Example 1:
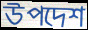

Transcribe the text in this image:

উপদেশ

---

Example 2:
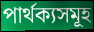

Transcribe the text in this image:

পাৰ্থক্যসমূহ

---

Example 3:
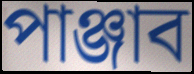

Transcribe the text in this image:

পাঞ্জাব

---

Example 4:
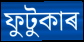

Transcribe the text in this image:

ফুটুকাৰ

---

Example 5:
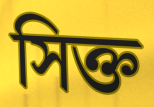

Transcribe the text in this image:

সিক্ত